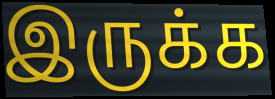
இருக்க